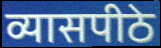
व्यासपीठे